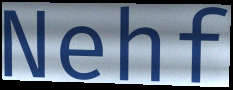
Nehf